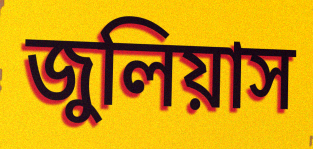
জুলিয়াস